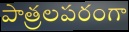
పాత్రలపరంగా